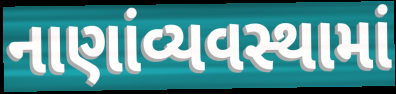
નાણાંવ્યવસ્થામાં